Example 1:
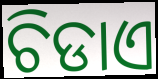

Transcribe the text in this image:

ଚିଡାଏ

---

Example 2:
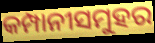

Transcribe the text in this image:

କମ୍ପାନୀସମୁହର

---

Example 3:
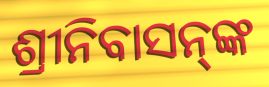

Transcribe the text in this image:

ଶ୍ରୀନିବାସନ୍‌ଙ୍କ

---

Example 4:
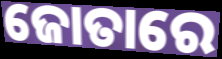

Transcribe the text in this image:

ଜୋତାରେ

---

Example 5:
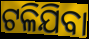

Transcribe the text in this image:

ଟଳିଯିବା